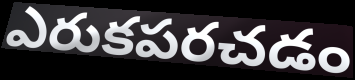
ఎరుకపరచడం